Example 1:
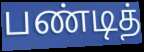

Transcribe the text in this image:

பண்டித்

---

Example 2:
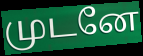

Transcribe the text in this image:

முடனே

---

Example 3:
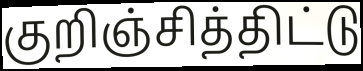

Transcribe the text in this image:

குறிஞ்சித்திட்டு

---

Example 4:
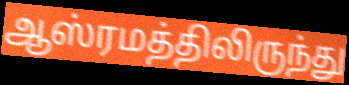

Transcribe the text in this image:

ஆஸ்ரமத்திலிருந்து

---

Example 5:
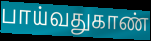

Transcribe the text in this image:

பாய்வதுகாண்